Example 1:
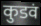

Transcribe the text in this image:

कुडवं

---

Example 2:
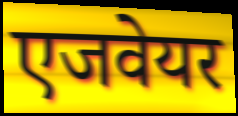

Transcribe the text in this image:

एजवेयर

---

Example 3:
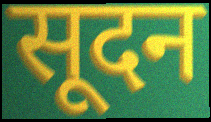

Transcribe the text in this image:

सूदन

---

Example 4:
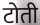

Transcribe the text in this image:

टोती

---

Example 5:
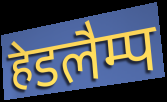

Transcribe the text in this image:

हेडलैम्प